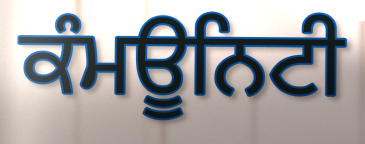
ਕੰਮਊਨਿਟੀ